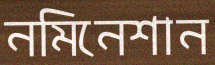
নমিনেশান